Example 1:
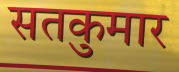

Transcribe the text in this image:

सतकुमार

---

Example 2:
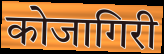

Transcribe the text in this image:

कोजागिरी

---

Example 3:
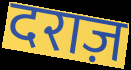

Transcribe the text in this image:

दराज़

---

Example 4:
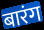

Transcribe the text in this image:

बारंग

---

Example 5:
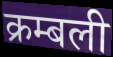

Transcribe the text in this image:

क्रम्बली